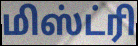
மிஸ்ட்ரி